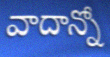
వాదాన్నో